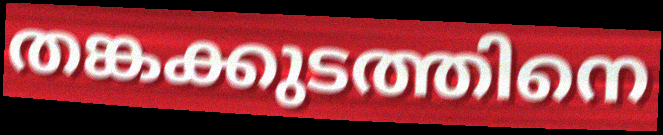
തങ്കക്കുടത്തിനെ